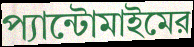
প্যান্টোমাইমের